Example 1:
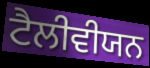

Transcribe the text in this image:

ਟੈਲੀਵੀਯਨ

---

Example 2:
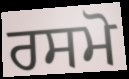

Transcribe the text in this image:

ਰਸਮੋ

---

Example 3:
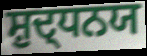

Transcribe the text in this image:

ਸ਼ੁਦ੍ਧਨਯ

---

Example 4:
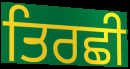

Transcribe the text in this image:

ਤਿਰਛੀ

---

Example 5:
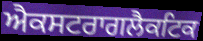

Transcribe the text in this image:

ਐਕਸਟਰਾਗਲੈਕਟਿਕ